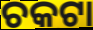
ଚକଟା